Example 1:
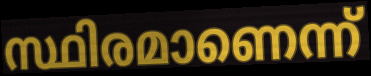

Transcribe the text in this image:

സ്ഥിരമാണെന്ന്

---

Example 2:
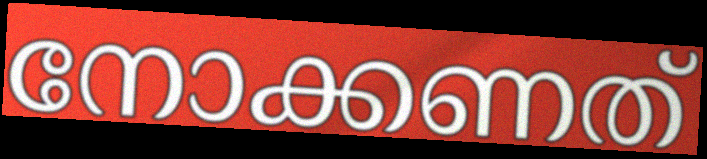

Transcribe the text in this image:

നോക്കണത്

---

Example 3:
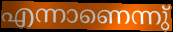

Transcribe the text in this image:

എന്നാണെന്നു്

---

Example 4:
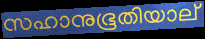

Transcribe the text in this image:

സഹാനുഭൂതിയാല്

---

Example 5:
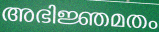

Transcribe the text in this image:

അഭിജ്ഞമതം